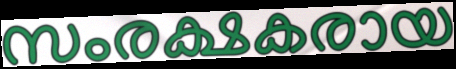
സംരക്ഷകരായ